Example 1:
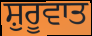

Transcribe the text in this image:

ਸ਼ੁਰੂਵਾਤ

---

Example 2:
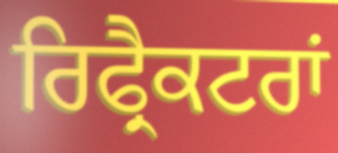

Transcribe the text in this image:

ਰਿਫ੍ਰੈਕਟਰਾਂ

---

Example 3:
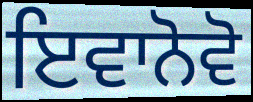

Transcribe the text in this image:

ਇਵਾਨੋਵੋ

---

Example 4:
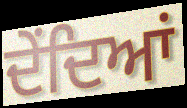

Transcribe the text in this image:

ਦੇਂਦਿਆਂ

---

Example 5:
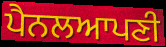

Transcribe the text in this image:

ਪੈਨਲਆਪਣੀ